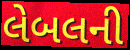
લેબલની